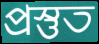
প্ৰস্তুত